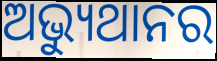
ଅଭ୍ୟୁଥାନର